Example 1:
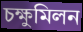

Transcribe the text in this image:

চক্ষুমিলন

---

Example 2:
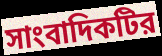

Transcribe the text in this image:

সাংবাদিকটির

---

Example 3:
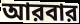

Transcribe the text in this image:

আরবার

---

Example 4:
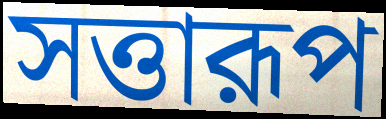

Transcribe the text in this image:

সত্তারূপ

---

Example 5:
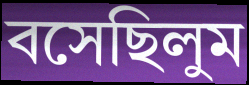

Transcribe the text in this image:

বসেছিলুম